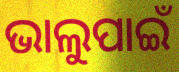
ଭାଲୁପାଇଁ